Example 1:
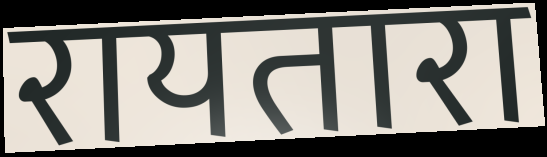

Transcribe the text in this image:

रायतारा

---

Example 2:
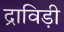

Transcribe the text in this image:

द्राविड़ी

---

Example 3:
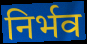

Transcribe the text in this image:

निर्भव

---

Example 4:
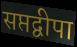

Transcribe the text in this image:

सप्तद्वीपा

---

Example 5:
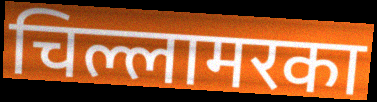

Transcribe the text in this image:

चिल्लामरका